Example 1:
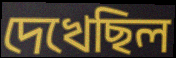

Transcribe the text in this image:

দেখেছিল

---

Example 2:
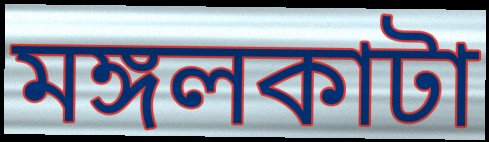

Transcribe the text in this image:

মঙ্গলকাটা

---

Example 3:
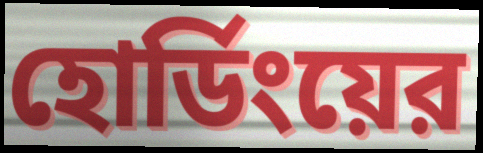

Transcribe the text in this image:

হোর্ডিংয়ের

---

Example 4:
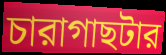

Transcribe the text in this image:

চারাগাছটার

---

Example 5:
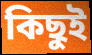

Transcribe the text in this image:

কিছুই